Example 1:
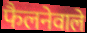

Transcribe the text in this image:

फैलनेवाले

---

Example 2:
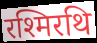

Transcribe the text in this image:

रश्मिरथि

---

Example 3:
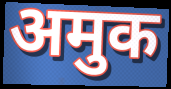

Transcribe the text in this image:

अमुक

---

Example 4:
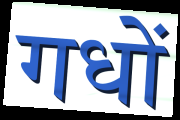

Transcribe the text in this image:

गधों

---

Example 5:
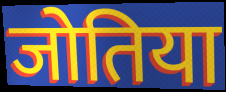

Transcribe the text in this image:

जोतिया